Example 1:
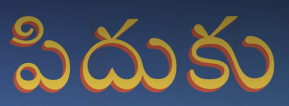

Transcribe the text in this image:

పిదుకు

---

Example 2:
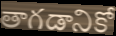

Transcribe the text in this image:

తాగడానికో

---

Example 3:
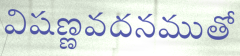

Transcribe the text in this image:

విషణ్ణవదనముతో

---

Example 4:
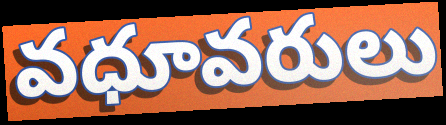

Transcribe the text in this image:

వధూవరులు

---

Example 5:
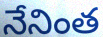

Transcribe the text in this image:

నేనింత